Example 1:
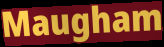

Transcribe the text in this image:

Maugham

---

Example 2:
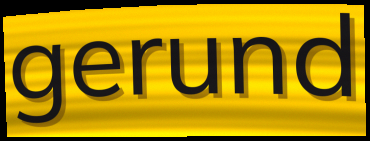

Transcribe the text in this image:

gerund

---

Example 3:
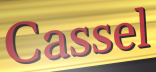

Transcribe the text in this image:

Cassel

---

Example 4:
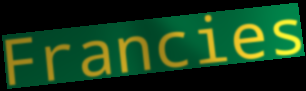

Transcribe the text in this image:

Francies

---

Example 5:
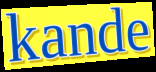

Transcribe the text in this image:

kande